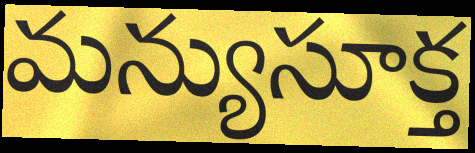
మన్యుసూక్త